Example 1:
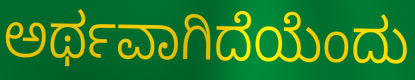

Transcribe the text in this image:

ಅರ್ಥವಾಗಿದೆಯೆಂದು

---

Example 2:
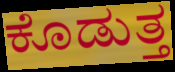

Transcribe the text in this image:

ಕೊಡುತ್ತ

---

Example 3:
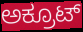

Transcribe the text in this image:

ಅಕ್ರೂಟ್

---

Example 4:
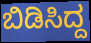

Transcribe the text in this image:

ಬಿಡಿಸಿದ್ದ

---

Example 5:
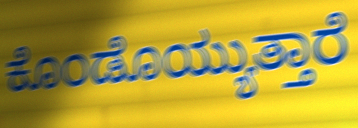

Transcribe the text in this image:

ಕೊಂಡೊಯ್ಯುತ್ತಾರೆ